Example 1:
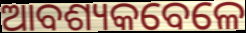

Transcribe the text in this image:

ଆବଶ୍ୟକବେଳେ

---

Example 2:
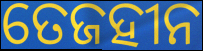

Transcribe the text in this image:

ତେଜହୀନ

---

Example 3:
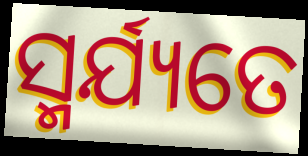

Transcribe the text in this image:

ସ୍ମର୍ଯ୍ୟତେ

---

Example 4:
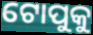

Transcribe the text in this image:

ଟୋପୁକୁ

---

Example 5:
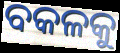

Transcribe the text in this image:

ବକଳକୁ